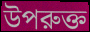
উপরুক্ত